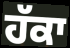
ਹੱਕਾ